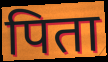
पिता